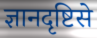
ज्ञानदृष्टिसे